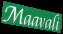
Maavali